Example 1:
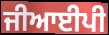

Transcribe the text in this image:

ਜੀਆਈਪੀ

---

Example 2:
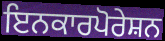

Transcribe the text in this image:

ਇਨਕਾਰਪੋਰੇਸ਼ਨ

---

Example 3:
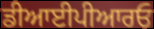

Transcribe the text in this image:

ਡੀਆਈਪੀਆਰਓ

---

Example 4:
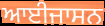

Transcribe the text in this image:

ਆਈਜਾਸਨ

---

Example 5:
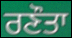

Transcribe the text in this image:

ਰਣੌਤਾ